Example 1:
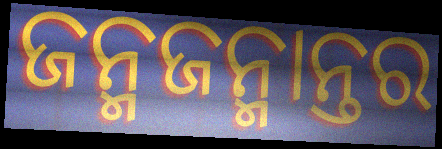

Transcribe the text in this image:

ଜନ୍ମଜନ୍ମାନ୍ତର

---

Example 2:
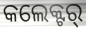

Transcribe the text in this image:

କଲେକ୍ଟର୍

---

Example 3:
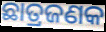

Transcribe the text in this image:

ଛାତ୍ରଜଣକ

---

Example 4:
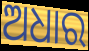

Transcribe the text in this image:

ଅଧାର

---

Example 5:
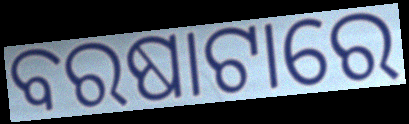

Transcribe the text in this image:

ବରଷାଟାରେ